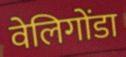
वेलिगोंडा